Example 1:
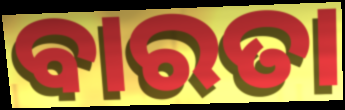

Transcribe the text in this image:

ବାରତା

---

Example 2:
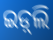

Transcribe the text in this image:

ଇଡ଼୍‌ଲି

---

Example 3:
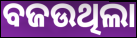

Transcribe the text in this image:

ବଜଉଥିଲା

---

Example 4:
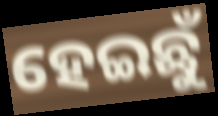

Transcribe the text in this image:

ହେଇଛୁଁ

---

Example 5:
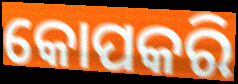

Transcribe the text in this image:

କୋପକରି